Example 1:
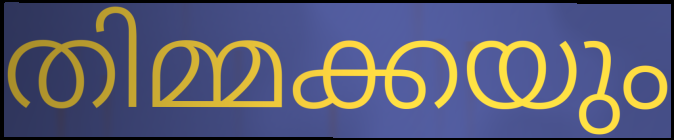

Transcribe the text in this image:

തിമ്മക്കയും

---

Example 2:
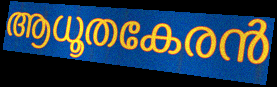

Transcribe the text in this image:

ആധൂതകേരൻ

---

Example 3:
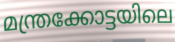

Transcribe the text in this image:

മന്ത്രക്കോട്ടയിലെ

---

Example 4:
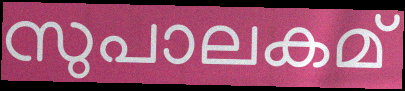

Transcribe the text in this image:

സുപാലകമ്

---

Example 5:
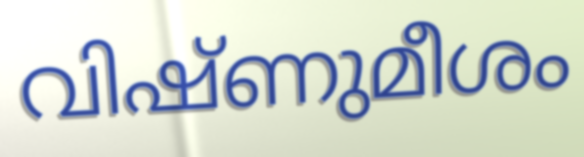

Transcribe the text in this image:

വിഷ്ണുമീശം